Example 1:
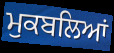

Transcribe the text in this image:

ਮੁਕਬਲਿਆਂ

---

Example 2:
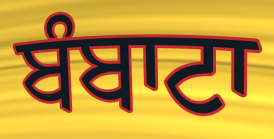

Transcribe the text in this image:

ਬੰਬਾਟਾ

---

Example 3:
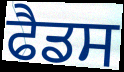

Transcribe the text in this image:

ਫੈਡਸ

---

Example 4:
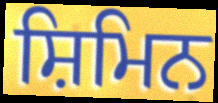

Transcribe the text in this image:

ਸ਼ਿਮਿਨ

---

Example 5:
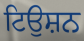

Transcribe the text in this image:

ਟਿਉਸ਼ਨ